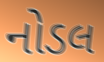
નોડલ